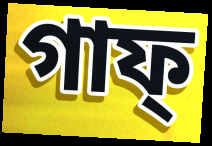
গাফ্